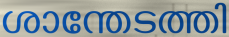
ശാന്തേടത്തി